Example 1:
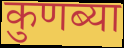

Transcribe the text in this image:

कुणब्या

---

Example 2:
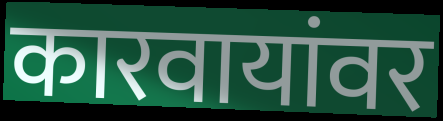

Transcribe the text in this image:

कारवायांवर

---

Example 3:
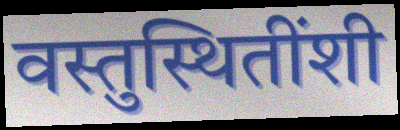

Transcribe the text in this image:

वस्तुस्थितींशी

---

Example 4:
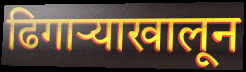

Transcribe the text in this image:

ढिगाऱ्याखालून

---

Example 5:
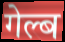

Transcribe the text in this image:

गेल्ब